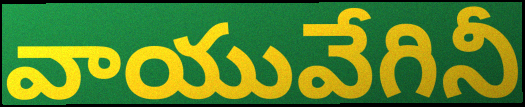
వాయువేగినీ